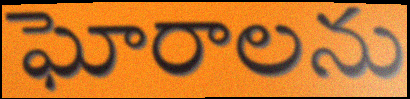
ఘోరాలను